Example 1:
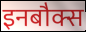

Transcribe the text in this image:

इनबौक्स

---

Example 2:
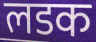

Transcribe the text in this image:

लडक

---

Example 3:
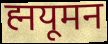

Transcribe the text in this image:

ह्मयूमन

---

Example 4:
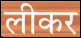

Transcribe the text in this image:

लीकर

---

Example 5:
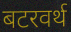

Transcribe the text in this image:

बटरवर्थ